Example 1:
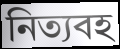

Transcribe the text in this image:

নিত্যবহ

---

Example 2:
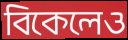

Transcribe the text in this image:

বিকেলেও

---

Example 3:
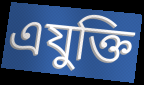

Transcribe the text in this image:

এযুক্তি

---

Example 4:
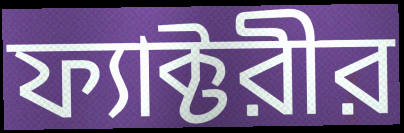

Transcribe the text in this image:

ফ্যাক্টরীর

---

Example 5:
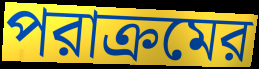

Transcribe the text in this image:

পরাক্রমের